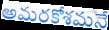
అమరకోశమనే